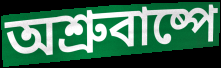
অশ্রুবাষ্পে